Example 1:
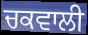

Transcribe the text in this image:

ਚਕਵਾਲੀ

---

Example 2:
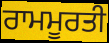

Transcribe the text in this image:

ਰਾਮਮੂਰਤੀ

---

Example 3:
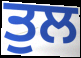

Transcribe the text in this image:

ਤੁਲ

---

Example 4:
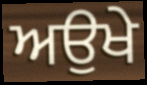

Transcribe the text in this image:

ਅਉਖੇ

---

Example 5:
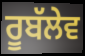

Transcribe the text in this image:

ਰੂਬੱਲੇਵ